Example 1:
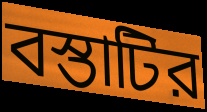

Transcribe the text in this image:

বস্তাটির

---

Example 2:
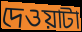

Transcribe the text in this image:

দেওয়াটা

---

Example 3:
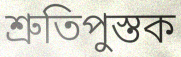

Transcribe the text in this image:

শ্রুতিপুস্তক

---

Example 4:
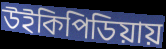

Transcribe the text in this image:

উইকিপিডিয়ায়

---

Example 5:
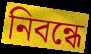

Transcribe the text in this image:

নিবন্ধে